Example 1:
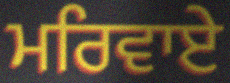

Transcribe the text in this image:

ਮਰਿਵਾਏ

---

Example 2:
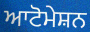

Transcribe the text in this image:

ਆਟੋਮੇਸ਼ਨ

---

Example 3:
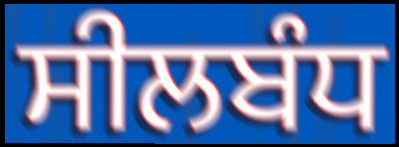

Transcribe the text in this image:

ਸੀਲਬੰਧ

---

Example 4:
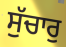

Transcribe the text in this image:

ਸੁੱਚਾਰੁ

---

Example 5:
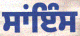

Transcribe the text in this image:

ਸਾਂਇੰਸ